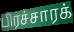
பிரச்சாரக்